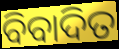
ବିବାଦିତ